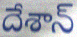
దేశాన్